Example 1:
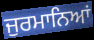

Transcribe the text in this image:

ਜੁਰਮਾਨਿਆਂ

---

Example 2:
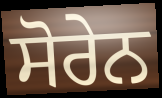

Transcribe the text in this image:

ਸੋਰੇਨ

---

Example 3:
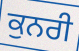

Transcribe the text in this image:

ਕੁਨਰੀ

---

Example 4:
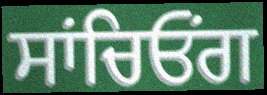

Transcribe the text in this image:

ਸਾਂਚਿਓਂਗ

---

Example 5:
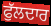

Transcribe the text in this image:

ਫੁੱਲਦਾਰ